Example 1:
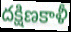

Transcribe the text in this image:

దక్షిణకాళీ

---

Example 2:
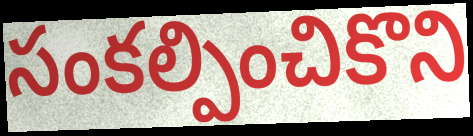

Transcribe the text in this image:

సంకల్పించికొని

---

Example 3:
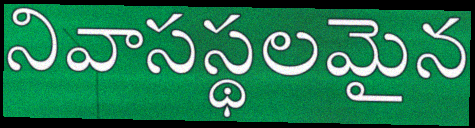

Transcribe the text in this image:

నివాసస్థలమైన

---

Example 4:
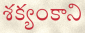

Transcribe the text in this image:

శక్యంకాని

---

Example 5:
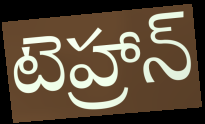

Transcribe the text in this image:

టెహ్రాన్